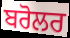
ਬਰੋਲਰ